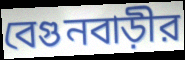
বেগুনবাড়ীর